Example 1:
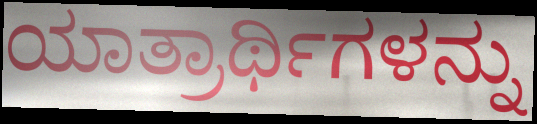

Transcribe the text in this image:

ಯಾತ್ರಾರ್ಥಿಗಳನ್ನು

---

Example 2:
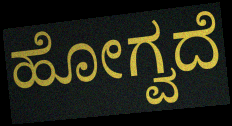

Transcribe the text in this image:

ಹೋಗ್ವದೆ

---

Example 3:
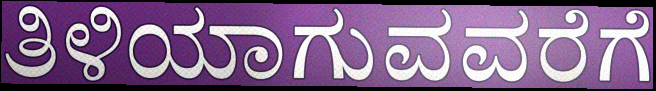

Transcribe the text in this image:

ತಿಳಿಯಾಗುವವರೆಗೆ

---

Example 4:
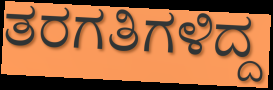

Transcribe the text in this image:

ತರಗತಿಗಳಿದ್ದ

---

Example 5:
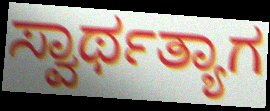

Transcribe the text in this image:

ಸ್ವಾರ್ಥತ್ಯಾಗ